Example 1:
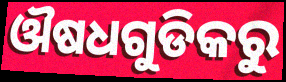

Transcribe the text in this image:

ଔଷଧଗୁଡିକରୁ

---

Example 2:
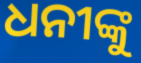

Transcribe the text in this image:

ଧନୀଙ୍କୁ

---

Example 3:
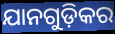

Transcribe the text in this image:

ଯାନଗୁଡ଼ିକର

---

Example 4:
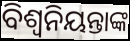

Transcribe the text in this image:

ବିଶ୍ବନିୟନ୍ତାଙ୍କ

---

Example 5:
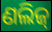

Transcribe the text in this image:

ଣଲିଜ୍